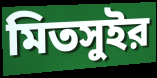
মিতসুইর